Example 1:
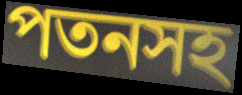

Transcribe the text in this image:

পতনসহ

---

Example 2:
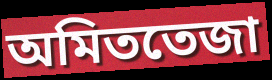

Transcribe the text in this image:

অমিততেজা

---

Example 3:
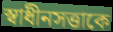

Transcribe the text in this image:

স্বাধীনসত্তাকে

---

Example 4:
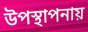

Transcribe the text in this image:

উপস্থাপনায়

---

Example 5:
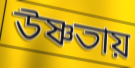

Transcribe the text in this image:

উষ্ণতায়